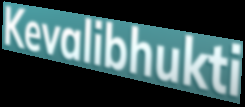
Kevalibhukti